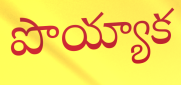
పొయ్యాక